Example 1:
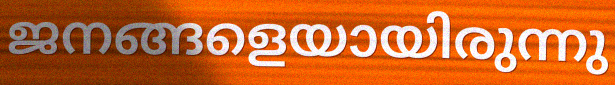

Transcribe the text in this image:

ജനങ്ങളെയായിരുന്നു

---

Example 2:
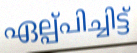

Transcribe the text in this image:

ഏല്പ്പിച്ചിട്ട്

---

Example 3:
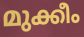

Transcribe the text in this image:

മുക്കീം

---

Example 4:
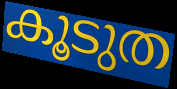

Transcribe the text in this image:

കൂടുത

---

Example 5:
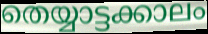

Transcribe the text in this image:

തെയ്യാട്ടക്കാലം